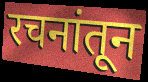
रचनांतून